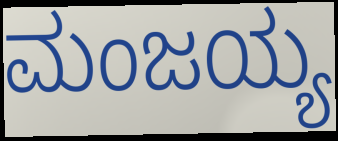
ಮಂಜಯ್ಯ